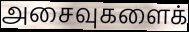
அசைவுகளைக்